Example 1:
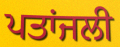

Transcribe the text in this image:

ਪਤਾਂਜਲੀ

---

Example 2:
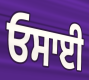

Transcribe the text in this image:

ਓਸਾਈ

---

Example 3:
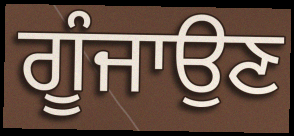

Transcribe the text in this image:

ਗੂੰਜਾਉਣ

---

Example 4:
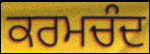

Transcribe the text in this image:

ਕਰਮਚੰਦ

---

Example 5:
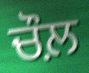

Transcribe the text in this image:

ਚੌਲ਼